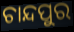
ଚାନ୍ଦପୁର